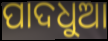
ପାଦଧୁଆ